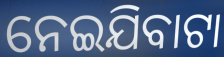
ନେଇଯିବାଟା